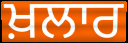
ਖ਼ਲਾਰ